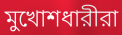
মুখোশধারীরা